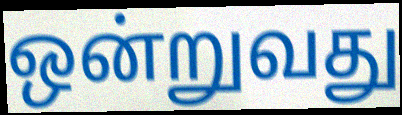
ஒன்றுவது